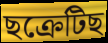
ছক্ৰেটিছ